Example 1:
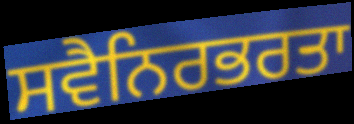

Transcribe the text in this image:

ਸਵੈਨਿਰਭਰਤਾ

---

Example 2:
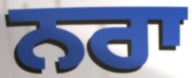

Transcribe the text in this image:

ਨਰਾ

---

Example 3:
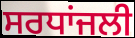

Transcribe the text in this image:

ਸਰਧਾਂਜਲੀ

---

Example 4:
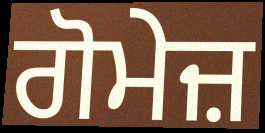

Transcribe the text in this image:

ਗੋਮੇਜ਼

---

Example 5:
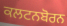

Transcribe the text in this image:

ਕਲਟਨਬੋਰਨ